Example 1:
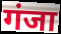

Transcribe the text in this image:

गंजा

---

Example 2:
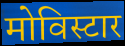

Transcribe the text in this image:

मोविस्टार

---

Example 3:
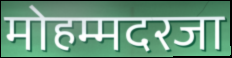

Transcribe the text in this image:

मोहम्मदरजा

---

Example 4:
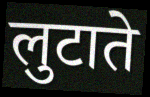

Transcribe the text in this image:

लुटाते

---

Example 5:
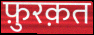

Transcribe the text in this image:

फ़ुरक़त